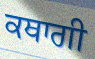
ਕਥਾਗੀ